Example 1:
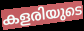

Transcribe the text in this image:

കളരിയുടെ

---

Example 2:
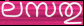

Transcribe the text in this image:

ലസതു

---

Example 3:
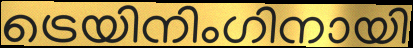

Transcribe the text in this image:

ട്രെയിനിംഗിനായി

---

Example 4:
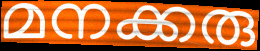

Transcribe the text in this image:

മനക്കരു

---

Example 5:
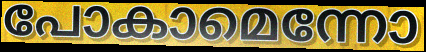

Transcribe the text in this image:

പോകാമെന്നോ